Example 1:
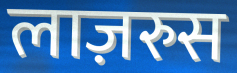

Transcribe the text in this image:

लाज़रुस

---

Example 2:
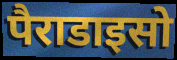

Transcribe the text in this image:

पैराडाइसो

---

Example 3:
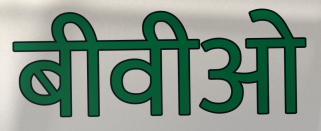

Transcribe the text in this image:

बीवीओ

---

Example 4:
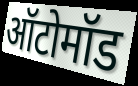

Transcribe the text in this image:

ऑटोमॉड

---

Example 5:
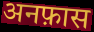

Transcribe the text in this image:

अनफ़ास